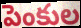
పెంకుల